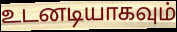
உடனடியாகவும்